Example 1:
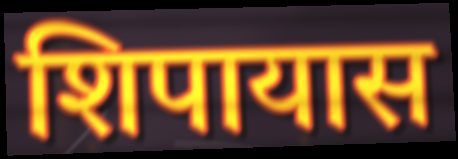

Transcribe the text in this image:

शिपायास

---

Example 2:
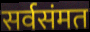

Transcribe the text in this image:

सर्वसंमत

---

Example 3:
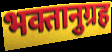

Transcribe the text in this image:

भक्तानुग्रह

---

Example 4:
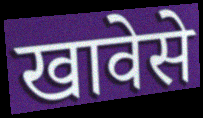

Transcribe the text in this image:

खावेसे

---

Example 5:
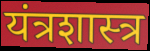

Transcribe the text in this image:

यंत्रशास्त्र